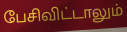
பேசிவிட்டாலும்